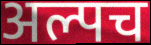
अल्पच